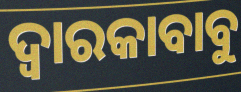
ଦ୍ୱାରକାବାବୁ